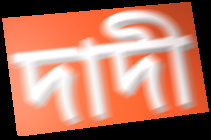
দাদী